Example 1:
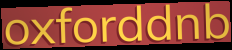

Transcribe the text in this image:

oxforddnb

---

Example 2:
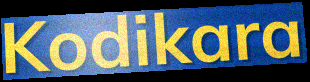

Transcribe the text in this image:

Kodikara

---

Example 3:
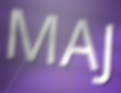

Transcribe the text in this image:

MAJ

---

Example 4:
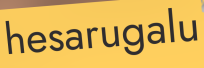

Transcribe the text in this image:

hesarugalu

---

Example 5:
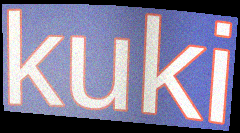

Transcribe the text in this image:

kuki